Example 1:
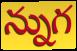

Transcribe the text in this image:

న్నుగ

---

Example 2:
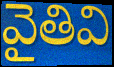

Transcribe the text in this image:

వైతివి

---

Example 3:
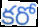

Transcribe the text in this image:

కరో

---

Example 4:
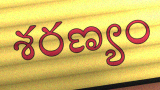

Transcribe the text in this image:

శరణ్యం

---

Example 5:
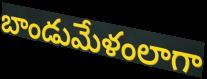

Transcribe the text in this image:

బాండుమేళంలాగా